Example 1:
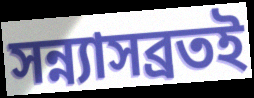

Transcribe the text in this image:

সন্ন্যাসব্রতই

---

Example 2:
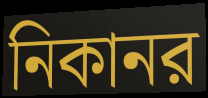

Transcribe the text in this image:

নিকানর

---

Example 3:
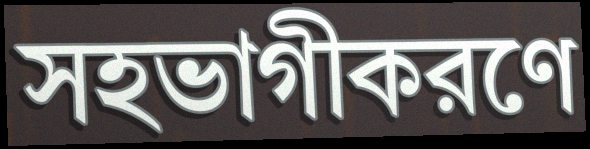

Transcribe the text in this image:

সহভাগীকরণে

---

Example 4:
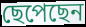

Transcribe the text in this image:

ছেপেছেন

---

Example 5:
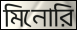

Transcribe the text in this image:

মিনোরি